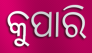
କୁପାରି